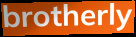
brotherly